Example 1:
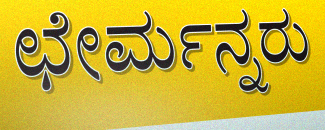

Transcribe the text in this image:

ಛೇರ್ಮನ್ನರು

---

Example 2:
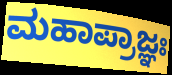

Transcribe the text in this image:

ಮಹಾಪ್ರಾಜ್ಞಃ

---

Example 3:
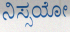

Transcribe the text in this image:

ನಿಸ್ಸಯೋ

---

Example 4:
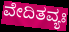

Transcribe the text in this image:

ವೇದಿತವ್ಯಃ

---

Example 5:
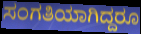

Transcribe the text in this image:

ಸಂಗತಿಯಾಗಿದ್ದರೂ